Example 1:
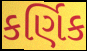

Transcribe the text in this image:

કર્ણિક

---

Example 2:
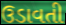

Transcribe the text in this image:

ઉડાવતી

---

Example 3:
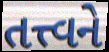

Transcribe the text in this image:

તત્ત્વને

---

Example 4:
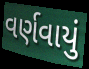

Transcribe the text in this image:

વર્ણવાયું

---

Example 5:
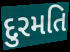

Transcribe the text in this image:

દુરમતિ